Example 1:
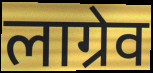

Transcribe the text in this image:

लाग्रेव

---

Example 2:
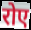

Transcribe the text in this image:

रोए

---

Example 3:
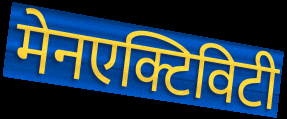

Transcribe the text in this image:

मेनएक्टिविटी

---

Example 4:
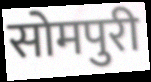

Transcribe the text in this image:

सोमपुरी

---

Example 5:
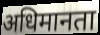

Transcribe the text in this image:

अधिमानता